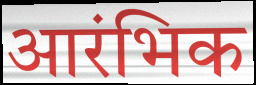
आरंभिक